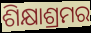
ଶିକ୍ଷାଶ୍ରମର